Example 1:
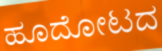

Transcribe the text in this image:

ಹೂದೋಟದ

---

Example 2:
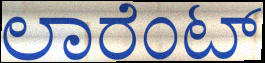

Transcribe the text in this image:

ಲಾರೆಂಟ್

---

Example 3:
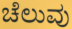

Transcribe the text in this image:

ಚೆಲುವು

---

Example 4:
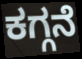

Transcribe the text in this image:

ಕಗ್ಗನೆ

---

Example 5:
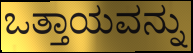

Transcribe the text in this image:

ಒತ್ತಾಯವನ್ನು